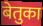
बेतुका